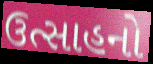
ઉત્સાહનો